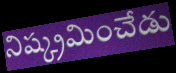
నిష్క్రమించేడు